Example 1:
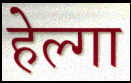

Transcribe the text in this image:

हेल्गा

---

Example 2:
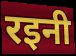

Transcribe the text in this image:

रइनी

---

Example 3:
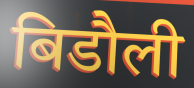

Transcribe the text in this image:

बिडौली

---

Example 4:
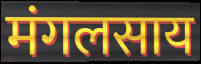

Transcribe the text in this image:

मंगलसाय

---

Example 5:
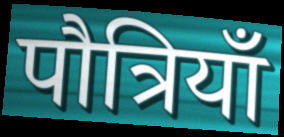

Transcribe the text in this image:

पौत्रियाँ